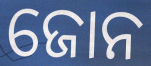
ଜୋନ